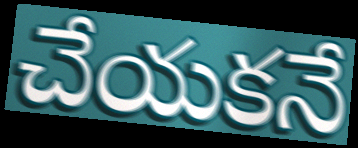
చేయకనే